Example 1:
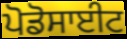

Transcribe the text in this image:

ਪੋਡੋਸਾਈਟ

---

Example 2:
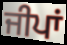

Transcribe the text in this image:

ਜੀਪਾਂ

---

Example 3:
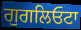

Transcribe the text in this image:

ਗੁਗਲਿਓਟਾ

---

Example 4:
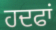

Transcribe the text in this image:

ਹਦਫਾਂ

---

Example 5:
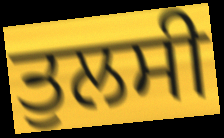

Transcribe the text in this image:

ਤੁਲਸੀ